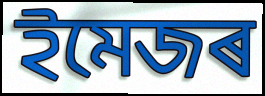
ইমেজৰ